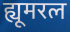
ह्यूमरल